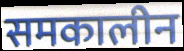
समकालीन